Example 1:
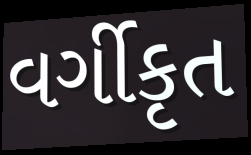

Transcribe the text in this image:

વર્ગીકૃત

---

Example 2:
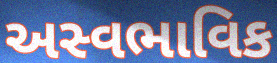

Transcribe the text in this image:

અસ્વભાવિક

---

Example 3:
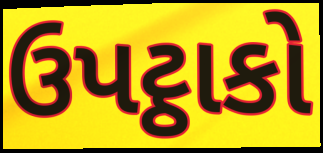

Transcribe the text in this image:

ઉપટ્ઠાકો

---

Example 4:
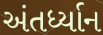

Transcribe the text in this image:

અંતર્ધ્યાન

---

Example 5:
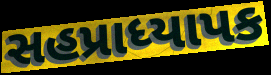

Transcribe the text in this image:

સહપ્રાધ્યાપક